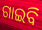
ଗାଇବି